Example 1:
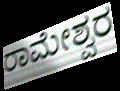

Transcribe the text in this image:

ರಾಮೇಶ್ವರ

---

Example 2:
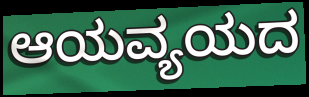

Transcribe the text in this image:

ಆಯವ್ಯಯದ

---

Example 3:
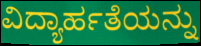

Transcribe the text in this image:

ವಿದ್ಯಾರ್ಹತೆಯನ್ನು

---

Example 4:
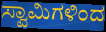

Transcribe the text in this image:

ಸ್ವಾಮಿಗಳಿಂದ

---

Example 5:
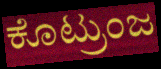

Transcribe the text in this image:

ಕೊಟ್ರುಂಜ